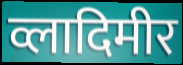
व्‍लादिमीर